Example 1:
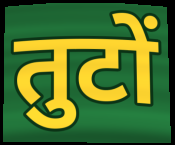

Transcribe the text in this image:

तुटों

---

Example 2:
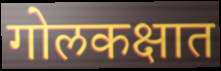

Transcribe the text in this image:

गोलकक्षात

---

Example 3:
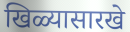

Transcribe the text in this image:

खिळ्यासारखे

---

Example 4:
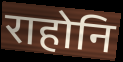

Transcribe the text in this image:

राहोनि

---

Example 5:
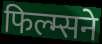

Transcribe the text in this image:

फिल्म्सने